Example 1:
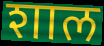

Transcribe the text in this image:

शाल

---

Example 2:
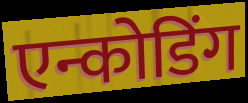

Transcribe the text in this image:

एन्कोडिंग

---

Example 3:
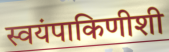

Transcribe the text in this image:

स्वयंपाकिणीशी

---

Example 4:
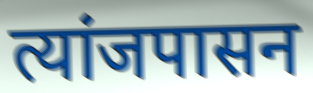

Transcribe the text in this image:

त्यांजपासन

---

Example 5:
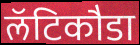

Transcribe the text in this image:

लॅटिकौडा